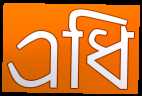
এধি